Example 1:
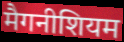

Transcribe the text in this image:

मैगनीशियम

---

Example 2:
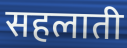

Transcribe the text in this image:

सहलाती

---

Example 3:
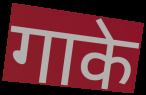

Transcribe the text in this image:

गाके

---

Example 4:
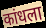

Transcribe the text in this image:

कांधला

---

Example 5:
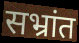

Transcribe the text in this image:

सभ्रांत